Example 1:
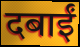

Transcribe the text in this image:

दबाईं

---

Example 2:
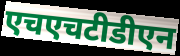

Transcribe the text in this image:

एचएचटीडीएन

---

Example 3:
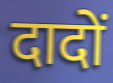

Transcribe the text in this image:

दादों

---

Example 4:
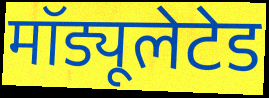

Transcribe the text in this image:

मॉड्यूलेटेड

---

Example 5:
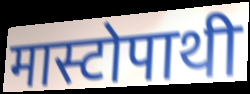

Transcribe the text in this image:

मास्टोपाथी